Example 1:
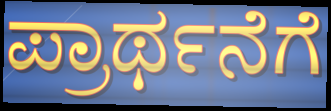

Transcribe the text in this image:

ಪ್ರಾರ್ಥನೆಗೆ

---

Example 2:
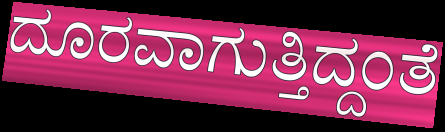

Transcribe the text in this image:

ದೂರವಾಗುತ್ತಿದ್ದಂತೆ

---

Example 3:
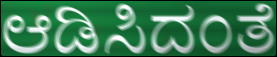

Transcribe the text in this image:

ಆಡಿಸಿದಂತೆ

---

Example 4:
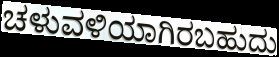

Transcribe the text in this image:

ಚಳುವಳಿಯಾಗಿರಬಹುದು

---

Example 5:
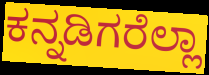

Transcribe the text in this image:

ಕನ್ನಡಿಗರೆಲ್ಲಾ